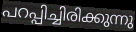
പറപ്പിച്ചിരിക്കുന്നു